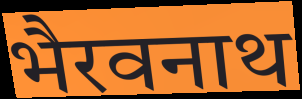
भैरवनाथ